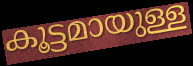
കൂട്ടമായുള്ള